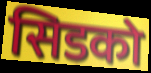
सिडको